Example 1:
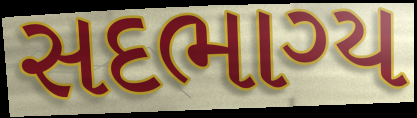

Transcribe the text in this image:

સદભાગ્ય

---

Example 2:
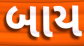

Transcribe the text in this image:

બાય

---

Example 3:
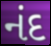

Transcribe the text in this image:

નંદ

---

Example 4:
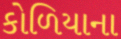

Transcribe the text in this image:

કોળિયાના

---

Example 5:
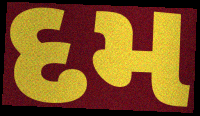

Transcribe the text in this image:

દમ